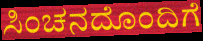
ಸಿಂಚನದೊಂದಿಗೆ